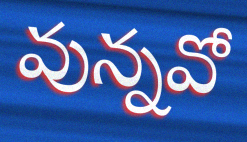
వున్నవో